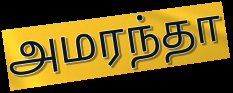
அமரந்தா